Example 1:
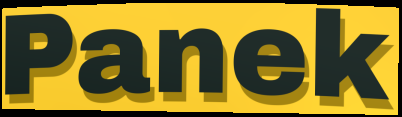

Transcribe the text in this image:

Panek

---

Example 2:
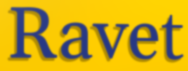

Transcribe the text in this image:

Ravet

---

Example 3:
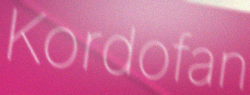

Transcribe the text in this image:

Kordofan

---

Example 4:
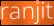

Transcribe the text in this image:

ranjit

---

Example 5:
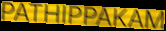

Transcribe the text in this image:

PATHIPPAKAM